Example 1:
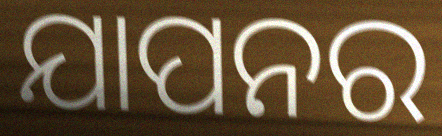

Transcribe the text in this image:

ଯାପନର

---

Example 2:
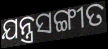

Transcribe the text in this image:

ଯନ୍ତ୍ରସଙ୍ଗୀତ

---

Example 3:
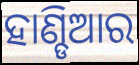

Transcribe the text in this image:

ହାଣ୍ଡିଆର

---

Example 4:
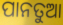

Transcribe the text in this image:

ପାନତୁଆ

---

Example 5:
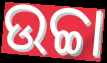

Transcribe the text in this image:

ଉଚ୍ଚା